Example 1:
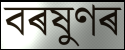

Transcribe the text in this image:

বৰষুণৰ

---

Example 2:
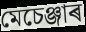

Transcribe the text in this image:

মেচেঞ্জাৰ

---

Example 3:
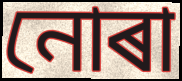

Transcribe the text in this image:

নোৰা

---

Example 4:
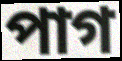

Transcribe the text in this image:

পাগ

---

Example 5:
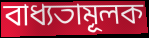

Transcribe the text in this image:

বাধ্যতামূলক